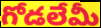
గోడలేమీ